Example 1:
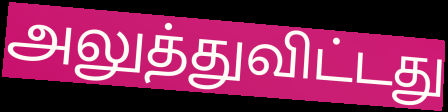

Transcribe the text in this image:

அலுத்துவிட்டது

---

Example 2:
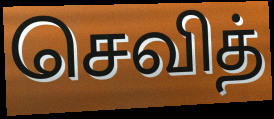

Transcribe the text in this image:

செவித்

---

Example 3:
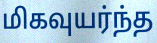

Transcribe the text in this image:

மிகவுயர்ந்த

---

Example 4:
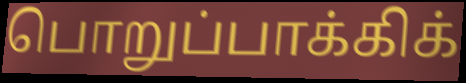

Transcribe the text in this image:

பொறுப்பாக்கிக்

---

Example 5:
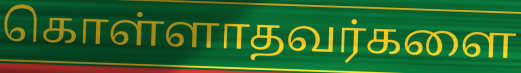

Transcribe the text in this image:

கொள்ளாதவர்களை